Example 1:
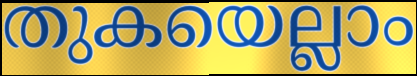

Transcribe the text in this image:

തുകയെല്ലാം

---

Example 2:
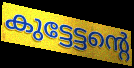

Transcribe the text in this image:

കുട്ടേട്ടന്റെ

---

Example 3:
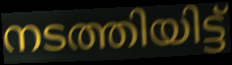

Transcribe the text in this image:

നടത്തിയിട്ട്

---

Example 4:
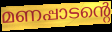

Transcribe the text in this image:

മണപ്പാടന്റെ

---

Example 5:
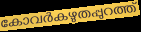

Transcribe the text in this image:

കോവർകഴുതപ്പുറത്ത്